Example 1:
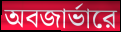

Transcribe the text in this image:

অবজার্ভারে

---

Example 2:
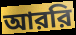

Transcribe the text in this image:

আররি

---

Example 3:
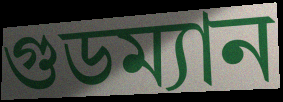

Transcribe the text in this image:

গুডম্যান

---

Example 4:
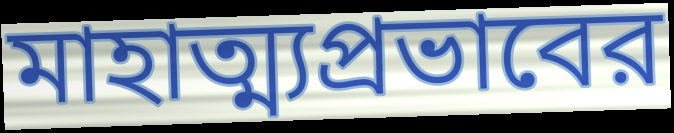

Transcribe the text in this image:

মাহাত্ম্যপ্রভাবের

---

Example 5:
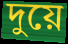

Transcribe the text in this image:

দুয়ে